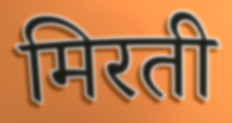
मिरती